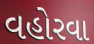
વહોરવા